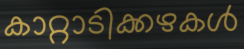
കാറ്റാടിക്കഴകൾ